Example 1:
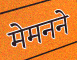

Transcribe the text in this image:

मेमनने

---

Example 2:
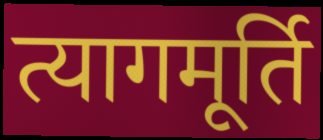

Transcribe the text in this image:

त्यागमूर्ति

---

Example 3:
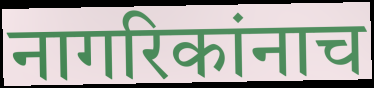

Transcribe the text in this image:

नागरिकांनाच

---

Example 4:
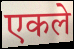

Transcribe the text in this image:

एकले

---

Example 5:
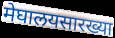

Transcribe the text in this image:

मेघालयसारख्या